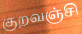
குறவஞ்சி